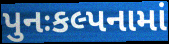
પુનઃકલ્પનામાં